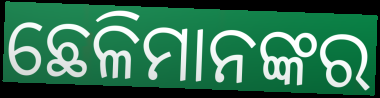
ଛେଳିମାନଙ୍କର